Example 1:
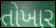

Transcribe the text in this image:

તોખાર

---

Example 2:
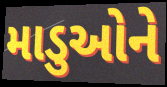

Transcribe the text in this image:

માડુઓને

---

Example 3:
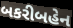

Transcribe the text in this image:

બકરીબહેન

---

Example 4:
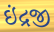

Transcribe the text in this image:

ઇંદ્રજી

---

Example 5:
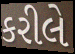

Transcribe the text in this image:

કરીલે